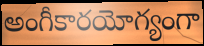
అంగీకారయోగ్యంగా